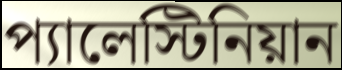
প্যালেস্টিনিয়ান